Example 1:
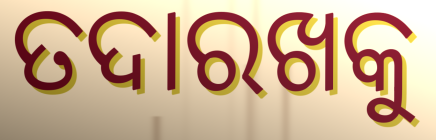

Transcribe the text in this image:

ତଦାରଖକୁ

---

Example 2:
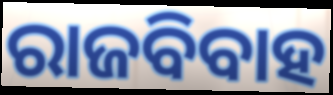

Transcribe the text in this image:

ରାଜବିବାହ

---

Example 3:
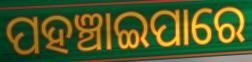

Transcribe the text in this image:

ପହଞ୍ଚାଇପାରେ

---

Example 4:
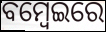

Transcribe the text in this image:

ବମ୍ବେଇରେ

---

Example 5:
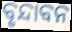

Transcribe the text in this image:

ବୃନ୍ଦାବନ